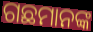
ଗଛମାନଙ୍କ